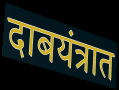
दाबयंत्रात